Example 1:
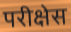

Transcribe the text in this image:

परीक्षेस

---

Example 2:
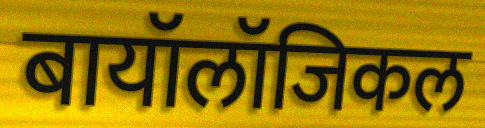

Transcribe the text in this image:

बायॉलॉजिकल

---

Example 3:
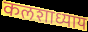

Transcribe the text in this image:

कलशाध्याय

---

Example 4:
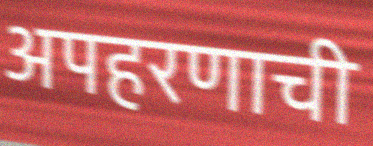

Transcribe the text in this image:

अपहरणाची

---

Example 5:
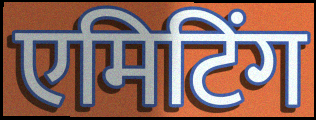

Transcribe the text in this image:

एमिटिंग